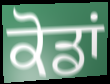
ਕੋਡਾਂ